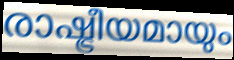
രാഷ്ട്രീയമായും